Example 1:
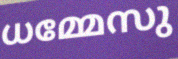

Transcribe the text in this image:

ധമ്മേസു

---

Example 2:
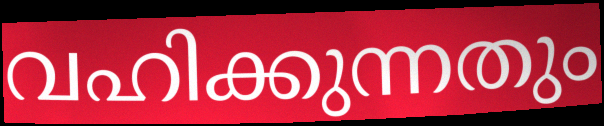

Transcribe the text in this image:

വഹിക്കുന്നതും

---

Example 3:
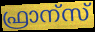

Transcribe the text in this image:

ഫ്രാന്സ്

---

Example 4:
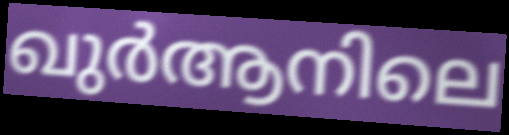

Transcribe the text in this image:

ഖുർആനിലെ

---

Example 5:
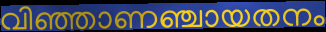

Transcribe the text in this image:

വിഞ്ഞാണഞ്ചായതനം